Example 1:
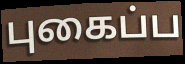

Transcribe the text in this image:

புகைப்ப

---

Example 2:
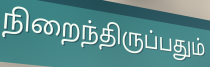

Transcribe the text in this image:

நிறைந்திருப்பதும்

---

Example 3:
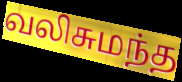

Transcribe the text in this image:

வலிசுமந்த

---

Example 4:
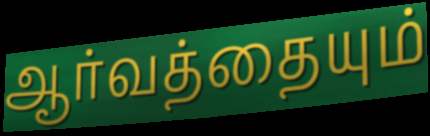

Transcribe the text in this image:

ஆர்வத்தையும்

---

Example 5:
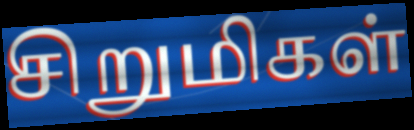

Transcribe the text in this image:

சிறுமிகள்